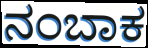
ನಂಬಾಕ